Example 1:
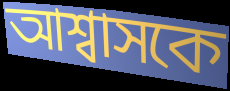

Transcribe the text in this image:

আশ্বাসকে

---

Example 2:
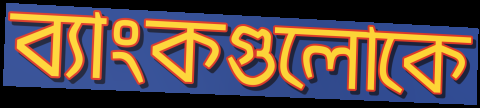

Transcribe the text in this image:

ব্যাংকগুলোকে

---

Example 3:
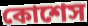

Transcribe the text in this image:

কোশেস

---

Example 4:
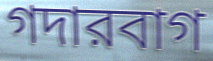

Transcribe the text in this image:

গদারবাগ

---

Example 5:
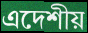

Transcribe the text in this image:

এদেশীয়